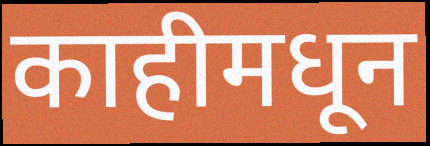
काहीमधून